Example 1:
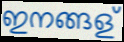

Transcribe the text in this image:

ഇനങ്ങള്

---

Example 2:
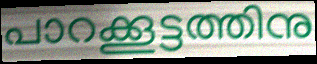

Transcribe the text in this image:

പാറക്കൂട്ടത്തിനു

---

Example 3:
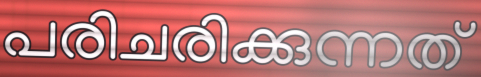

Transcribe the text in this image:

പരിചരിക്കുന്നത്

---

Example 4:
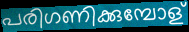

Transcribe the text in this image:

പരിഗണിക്കുമ്പോള്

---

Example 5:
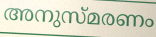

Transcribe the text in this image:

അനുസ്മരണം